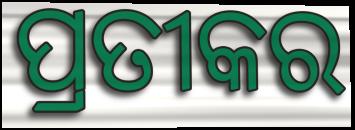
ପ୍ରତୀକର